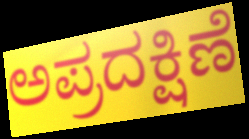
ಅಪ್ರದಕ್ಷಿಣೆ